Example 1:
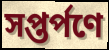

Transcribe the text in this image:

সপ্তর্পণে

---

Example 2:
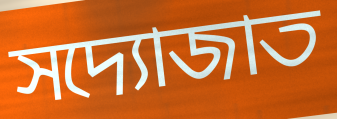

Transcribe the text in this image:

সদ্যোজাত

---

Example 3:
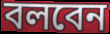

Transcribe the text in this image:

বলবেন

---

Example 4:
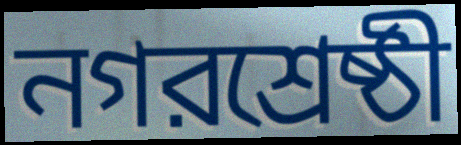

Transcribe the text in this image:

নগরশ্রেষ্ঠী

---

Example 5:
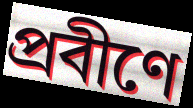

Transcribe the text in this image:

প্রবীণে